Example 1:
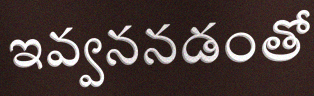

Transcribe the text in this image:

ఇవ్వననడంతో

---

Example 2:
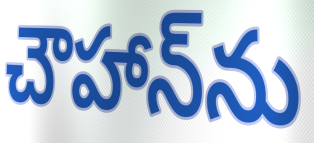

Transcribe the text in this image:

చౌహాన్‌ను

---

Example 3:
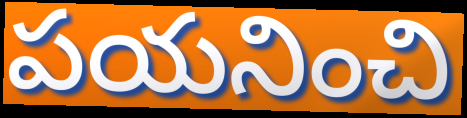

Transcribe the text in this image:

పయనించి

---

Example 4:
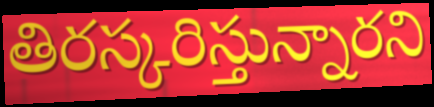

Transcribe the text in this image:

తిరస్కరిస్తున్నారని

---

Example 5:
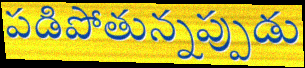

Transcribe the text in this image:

పడిపోతున్నప్పుడు